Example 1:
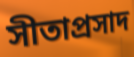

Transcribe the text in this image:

সীতাপ্রসাদ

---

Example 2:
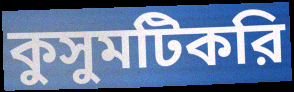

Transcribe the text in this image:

কুসুমটিকরি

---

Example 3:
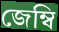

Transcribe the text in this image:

জেম্বি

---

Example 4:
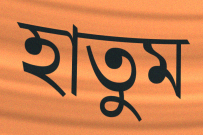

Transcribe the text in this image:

হাতুম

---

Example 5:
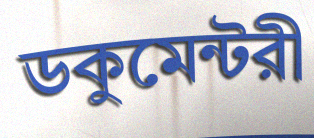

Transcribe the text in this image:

ডকুমেন্টরী